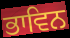
ਭਾਵਿਨ